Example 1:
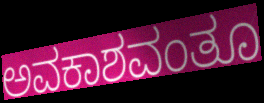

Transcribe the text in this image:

ಅವಕಾಶವಂತೂ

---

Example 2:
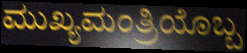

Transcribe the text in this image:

ಮುಖ್ಯಮಂತ್ರಿಯೊಬ್ಬ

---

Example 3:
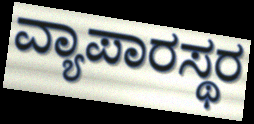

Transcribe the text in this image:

ವ್ಯಾಪಾರಸ್ಥರ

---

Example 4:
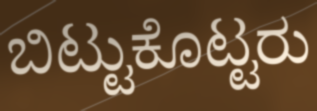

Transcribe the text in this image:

ಬಿಟ್ಟುಕೊಟ್ಟರು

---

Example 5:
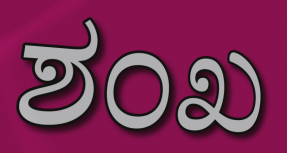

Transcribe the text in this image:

ಶಂಖ